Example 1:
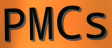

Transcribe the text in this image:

PMCs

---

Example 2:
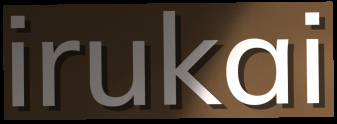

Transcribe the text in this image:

irukai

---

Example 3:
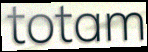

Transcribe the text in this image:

totam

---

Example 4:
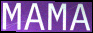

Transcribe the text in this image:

MAMA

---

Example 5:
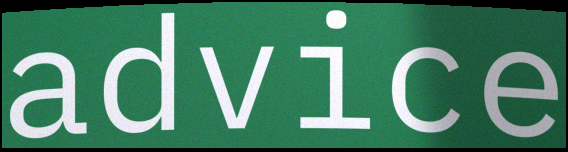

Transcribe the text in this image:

advice